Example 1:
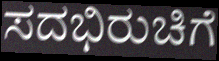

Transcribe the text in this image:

ಸದಭಿರುಚಿಗೆ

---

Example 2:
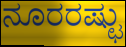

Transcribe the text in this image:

ನೂರರಷ್ಟು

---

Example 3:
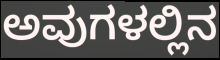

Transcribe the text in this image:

ಅವುಗಳಲ್ಲಿನ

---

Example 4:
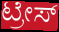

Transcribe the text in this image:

ಟ್ರೇಸ್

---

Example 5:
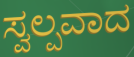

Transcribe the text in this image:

ಸ್ವಲ್ಪವಾದ